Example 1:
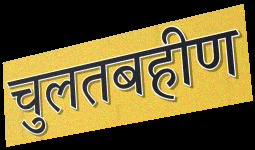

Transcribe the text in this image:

चुलतबहीण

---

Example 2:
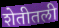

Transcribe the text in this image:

शेतीतली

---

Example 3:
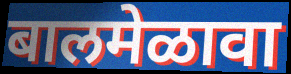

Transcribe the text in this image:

बालमेळावा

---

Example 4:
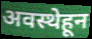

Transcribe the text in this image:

अवस्थेहून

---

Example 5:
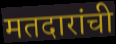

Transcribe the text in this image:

मतदारांची